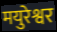
मयुरेश्वर